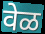
वेळ